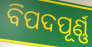
ବିପଦପୂର୍ଣ୍ଣ